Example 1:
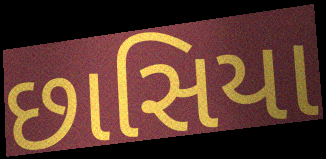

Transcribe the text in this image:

છાસિયા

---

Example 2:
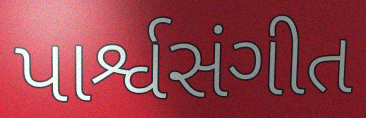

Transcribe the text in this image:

પાર્શ્વસંગીત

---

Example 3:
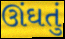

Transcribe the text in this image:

ઊંઘતું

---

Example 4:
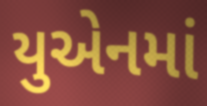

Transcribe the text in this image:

યુએનમાં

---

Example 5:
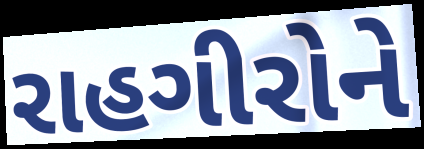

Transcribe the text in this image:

રાહગીરોને